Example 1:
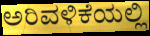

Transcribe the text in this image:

ಅರಿವಳಿಕೆಯಲ್ಲಿ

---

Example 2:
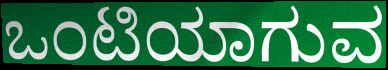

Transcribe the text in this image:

ಒಂಟಿಯಾಗುವ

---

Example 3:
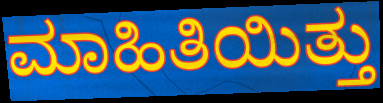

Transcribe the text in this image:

ಮಾಹಿತಿಯಿತ್ತು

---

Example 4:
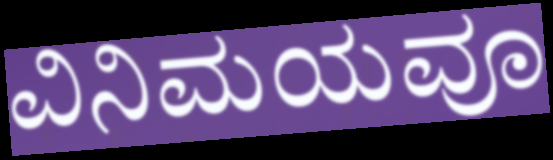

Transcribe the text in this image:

ವಿನಿಮಯವೂ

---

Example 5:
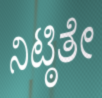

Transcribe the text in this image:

ನಿಟ್ಠಿತೇ